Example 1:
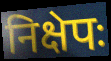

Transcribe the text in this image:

निक्षेपः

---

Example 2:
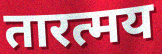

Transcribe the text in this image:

तारत्मय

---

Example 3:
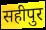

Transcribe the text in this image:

सहीपुर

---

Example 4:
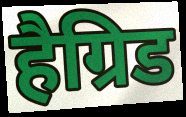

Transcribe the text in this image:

हैग्रिड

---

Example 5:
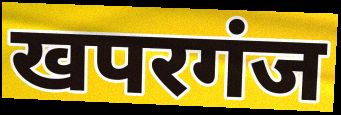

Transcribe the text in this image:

खपरगंज